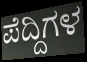
ಪೆದ್ದಿಗಳ